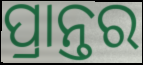
ପ୍ରାନ୍ତର